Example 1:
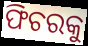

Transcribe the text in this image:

ଫିଚରକୁ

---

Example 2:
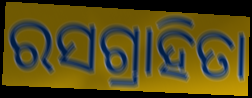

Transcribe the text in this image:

ରସଗ୍ରାହିତା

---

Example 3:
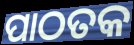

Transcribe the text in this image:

ପାଠତକ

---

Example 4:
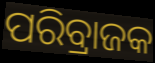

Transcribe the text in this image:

ପରିବ୍ରାଜକ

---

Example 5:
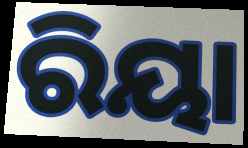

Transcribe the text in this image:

ରିୟା